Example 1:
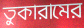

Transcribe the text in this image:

তুকারামের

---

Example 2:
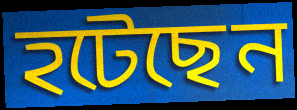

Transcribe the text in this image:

হটেছেন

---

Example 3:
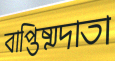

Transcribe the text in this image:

বাপ্তিষ্মদাতা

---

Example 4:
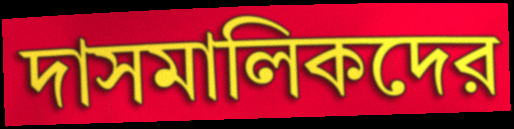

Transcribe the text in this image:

দাসমালিকদের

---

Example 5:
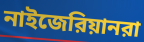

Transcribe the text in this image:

নাইজেরিয়ানরা